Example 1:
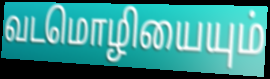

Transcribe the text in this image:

வடமொழியையும்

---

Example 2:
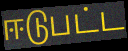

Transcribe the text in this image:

ஈடுபட்ட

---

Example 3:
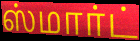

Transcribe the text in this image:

ஸ்மார்ட்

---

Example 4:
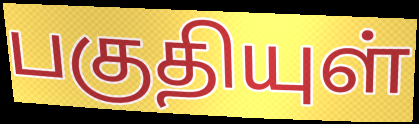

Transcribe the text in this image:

பகுதியுள்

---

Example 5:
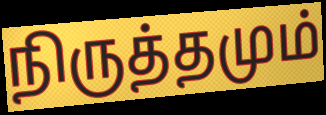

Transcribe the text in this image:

நிருத்தமும்